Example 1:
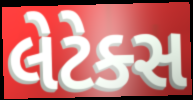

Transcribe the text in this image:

લેટેક્સ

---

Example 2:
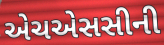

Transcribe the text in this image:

એચએસસીની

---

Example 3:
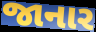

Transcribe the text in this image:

જાનાર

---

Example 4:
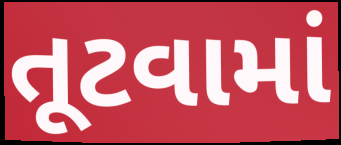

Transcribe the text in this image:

તૂટવામાં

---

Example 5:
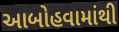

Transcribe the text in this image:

આબોહવામાંથી